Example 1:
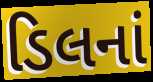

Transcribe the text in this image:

ડિલનાં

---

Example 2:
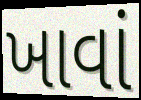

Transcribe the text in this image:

ખાવાં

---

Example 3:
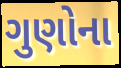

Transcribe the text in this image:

ગુણોના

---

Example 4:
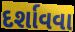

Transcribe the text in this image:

દર્શાવવા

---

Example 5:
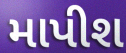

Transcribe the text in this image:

માપીશ